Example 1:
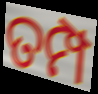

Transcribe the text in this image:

ତମ୍ପ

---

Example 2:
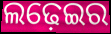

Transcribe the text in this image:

ଲଢ଼େଇର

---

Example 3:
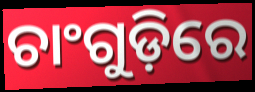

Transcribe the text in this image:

ଚାଂଗୁଡ଼ିରେ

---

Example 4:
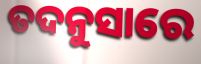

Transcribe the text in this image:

ତଦନୁସାରେ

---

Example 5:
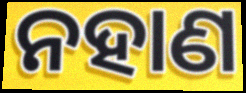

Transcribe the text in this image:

ନହାଣ